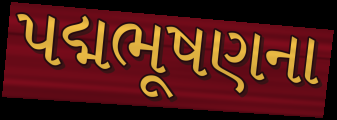
પદ્મભૂષણના